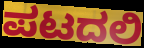
ಪಟದಲಿ